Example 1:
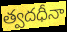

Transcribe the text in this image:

త్వదధీనా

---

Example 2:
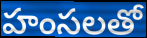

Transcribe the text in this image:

హంసలతో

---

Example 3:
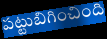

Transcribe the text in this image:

పట్టుబిగించింది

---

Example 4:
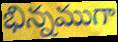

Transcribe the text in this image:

భిన్నముగా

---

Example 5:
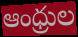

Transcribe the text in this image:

ఆంధ్రుల